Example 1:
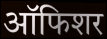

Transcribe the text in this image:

ऑफिशर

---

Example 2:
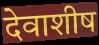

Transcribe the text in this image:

देवाशीष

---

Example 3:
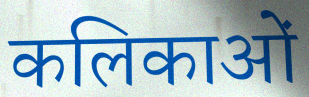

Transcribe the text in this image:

कलिकाओं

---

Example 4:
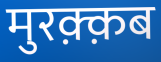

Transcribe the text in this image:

मुरक़्क़ब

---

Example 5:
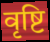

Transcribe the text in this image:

वृष्टि